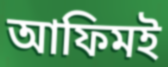
আফিমই